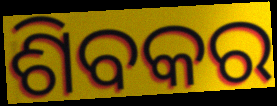
ଶିବକର